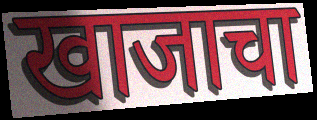
खाजाचा